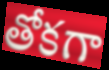
తోకగా